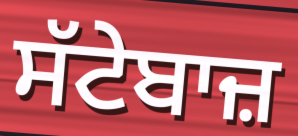
ਸੱਟੇਬਾਜ਼